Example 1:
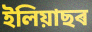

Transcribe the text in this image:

ইলিয়াছৰ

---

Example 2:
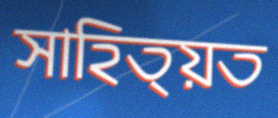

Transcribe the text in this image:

সাহিত্য়ত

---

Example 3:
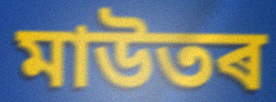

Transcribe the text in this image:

মাউতৰ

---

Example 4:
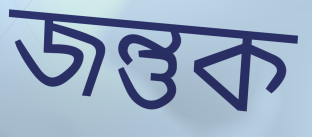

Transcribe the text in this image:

জন্তুক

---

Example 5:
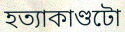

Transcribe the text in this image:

হত্যাকাণ্ডটো